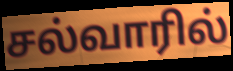
சல்வாரில்